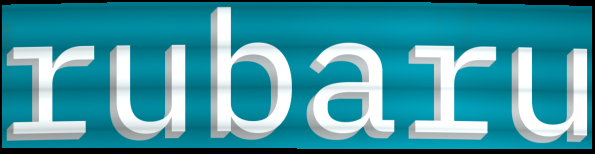
rubaru